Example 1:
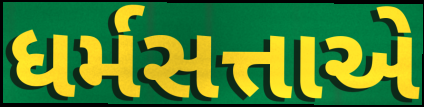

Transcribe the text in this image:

ધર્મસત્તાએ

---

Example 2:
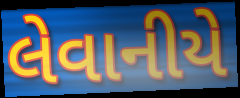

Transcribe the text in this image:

લેવાનીયે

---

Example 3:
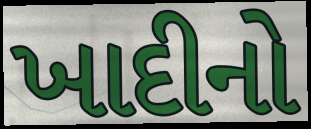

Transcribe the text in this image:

ખાદીનો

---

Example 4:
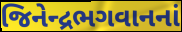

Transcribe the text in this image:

જિનેન્દ્રભગવાનનાં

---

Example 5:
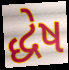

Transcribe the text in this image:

દ્ધેષ